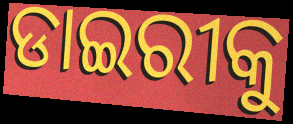
ଡାଇରୀକୁ